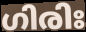
ഗിരിഃ